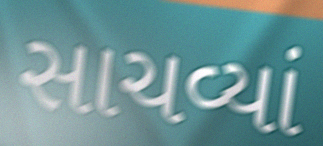
સાચવ્યાં